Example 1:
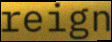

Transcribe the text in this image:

reign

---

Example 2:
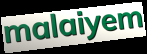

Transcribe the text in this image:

malaiyem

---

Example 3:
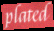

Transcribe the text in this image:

plated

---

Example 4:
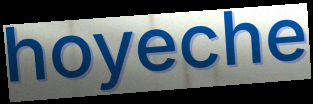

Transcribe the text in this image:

hoyeche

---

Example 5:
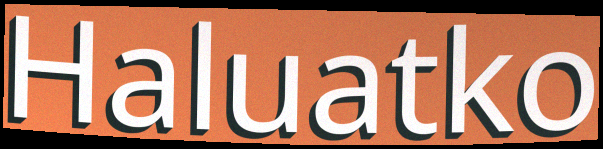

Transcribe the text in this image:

Haluatko